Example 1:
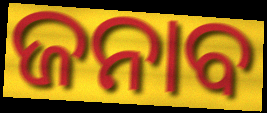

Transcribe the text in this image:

ଜନାବ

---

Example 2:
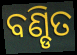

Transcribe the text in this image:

ବଣ୍ଡିତ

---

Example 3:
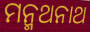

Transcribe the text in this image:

ମନ୍ମଥନାଥ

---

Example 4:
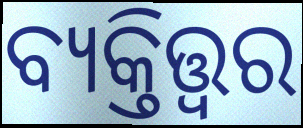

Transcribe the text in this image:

ବ୍ୟକ୍ତିତ୍ତ୍ଵର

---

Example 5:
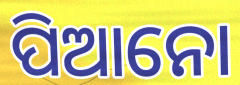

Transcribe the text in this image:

ପିଆନୋ